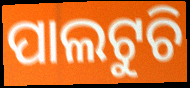
ପାଲଟୁଚି